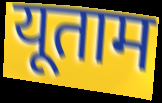
यूताम